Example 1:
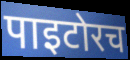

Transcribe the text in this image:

पाइटोरच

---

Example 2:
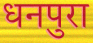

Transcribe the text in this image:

धनपुरा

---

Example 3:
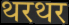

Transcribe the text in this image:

थरथर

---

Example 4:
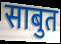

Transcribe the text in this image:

साबुत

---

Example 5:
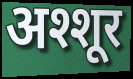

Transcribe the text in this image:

अश्शूर